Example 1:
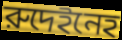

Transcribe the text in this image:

রুদেইনেহ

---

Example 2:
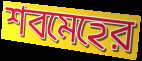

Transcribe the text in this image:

শবমেহের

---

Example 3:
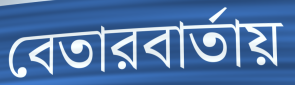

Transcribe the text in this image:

বেতারবার্তায়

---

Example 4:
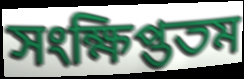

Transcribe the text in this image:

সংক্ষিপ্ততম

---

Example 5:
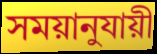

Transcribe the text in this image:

সময়ানুযায়ী